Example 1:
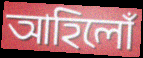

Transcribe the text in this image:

আহিলোঁ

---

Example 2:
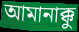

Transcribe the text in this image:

আমানাক্কু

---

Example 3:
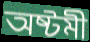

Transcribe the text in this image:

অষ্টমী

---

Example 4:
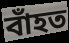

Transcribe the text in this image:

বাঁহত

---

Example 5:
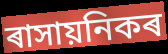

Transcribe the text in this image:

ৰাসায়নিকৰ